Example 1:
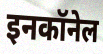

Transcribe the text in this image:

इनकॉनेल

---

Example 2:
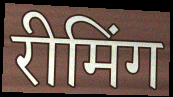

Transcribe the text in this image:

रीमिंग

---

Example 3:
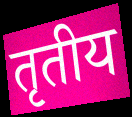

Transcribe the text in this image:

तृतीय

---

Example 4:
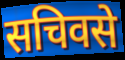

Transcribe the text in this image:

सचिवसे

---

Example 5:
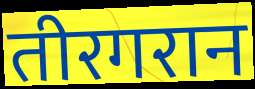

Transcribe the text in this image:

तीरगरान